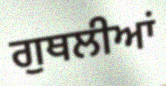
ਗੁਥਲੀਆਂ